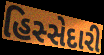
હિસ્સેદારી